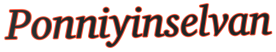
Ponniyinselvan